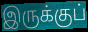
இருக்குப்